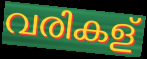
വരികള്